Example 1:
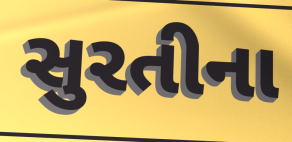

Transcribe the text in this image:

સુરતીના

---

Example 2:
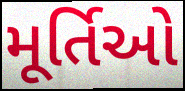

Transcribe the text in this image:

મૂર્તિઓ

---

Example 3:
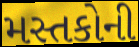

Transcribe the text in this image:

મસ્તકોની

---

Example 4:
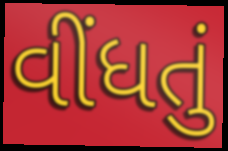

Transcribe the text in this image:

વીંધતું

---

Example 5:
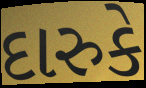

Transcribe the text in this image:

દારુકે